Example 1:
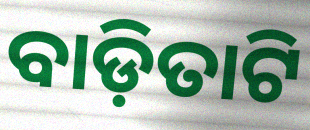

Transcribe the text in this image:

ବାଡ଼ିତାଟି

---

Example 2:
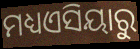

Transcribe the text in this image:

ମଧ୍ୟଏସିୟାରୁ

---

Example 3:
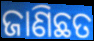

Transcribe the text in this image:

ଜାଣିଛତ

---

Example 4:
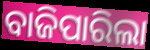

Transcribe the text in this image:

ବାଜିପାରିଲା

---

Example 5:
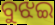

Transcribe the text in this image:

ବୁଝଇ